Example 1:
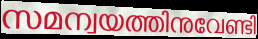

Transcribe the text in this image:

സമന്വയത്തിനുവേണ്ടി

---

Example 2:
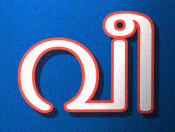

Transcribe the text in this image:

വീ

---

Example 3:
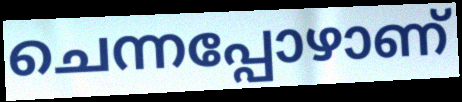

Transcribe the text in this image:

ചെന്നപ്പോഴാണ്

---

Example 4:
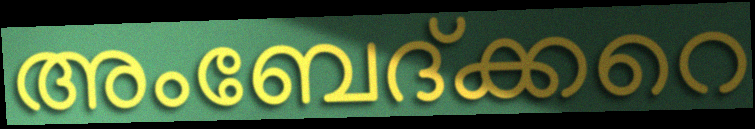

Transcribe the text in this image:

അംബേദ്ക്കറെ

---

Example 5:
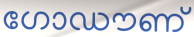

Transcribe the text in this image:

ഗോഡൗണ്